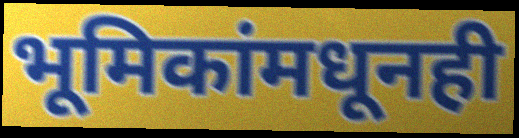
भूमिकांमधूनही